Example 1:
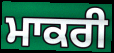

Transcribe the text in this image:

ਮਾਕਰੀ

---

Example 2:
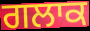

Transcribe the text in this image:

ਗਲਾਕ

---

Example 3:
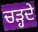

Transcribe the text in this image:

ਚਡ਼੍ਹਦੇ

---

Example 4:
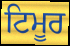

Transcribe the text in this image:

ਟਿਮੂਰ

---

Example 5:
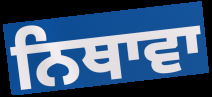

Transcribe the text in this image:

ਨਿਥਾਵਾ